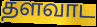
தளவாட